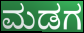
ಮಡಗ